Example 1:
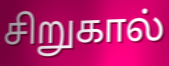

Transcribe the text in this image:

சிறுகால்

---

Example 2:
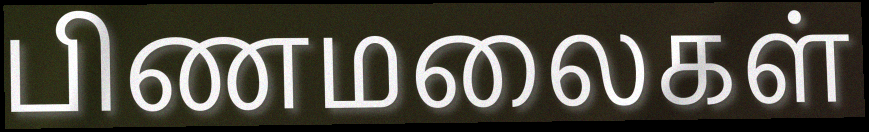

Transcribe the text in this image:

பிணமலைகள்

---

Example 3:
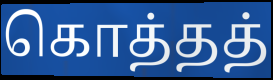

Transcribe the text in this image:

கொத்தத்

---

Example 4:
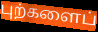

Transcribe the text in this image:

புற்களைப்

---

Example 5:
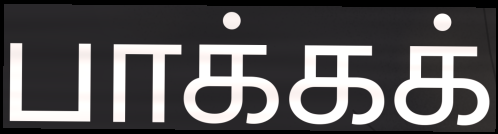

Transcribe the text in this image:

பாக்கக்